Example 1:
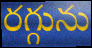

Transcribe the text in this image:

రగ్గును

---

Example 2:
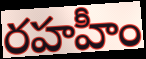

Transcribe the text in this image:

రహహీం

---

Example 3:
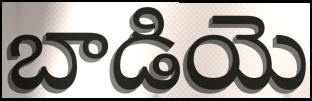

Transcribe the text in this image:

బాడియె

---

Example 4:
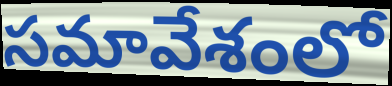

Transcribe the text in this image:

సమావేశంలో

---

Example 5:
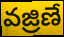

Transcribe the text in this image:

వజ్రిణే